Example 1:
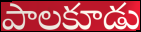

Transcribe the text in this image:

పాలకూడు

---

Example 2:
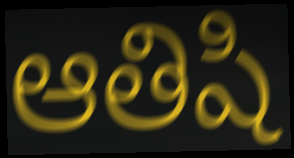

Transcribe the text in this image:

ఆతిషి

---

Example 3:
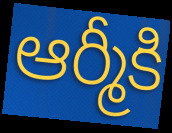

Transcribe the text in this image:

ఆర్మీకి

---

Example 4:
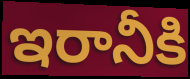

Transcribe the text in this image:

ఇరానీకి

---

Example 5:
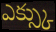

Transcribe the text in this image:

ఎక్స్కు